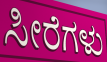
ಸೀರೆಗಳು